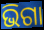
ଭିଗା